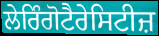
ਲੇਰਿੰਗੋਟੈਰੇਸਿਟੀਜ਼